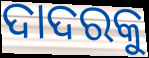
ଦାଦରକୁ